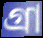
গ্রা